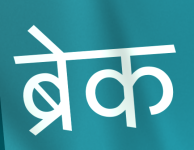
ब्रेक